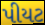
પીયટ